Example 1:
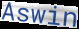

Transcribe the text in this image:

Aswin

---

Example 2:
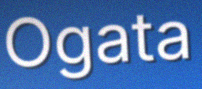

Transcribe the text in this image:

Ogata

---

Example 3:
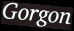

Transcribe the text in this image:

Gorgon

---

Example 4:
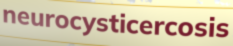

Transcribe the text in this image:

neurocysticercosis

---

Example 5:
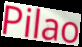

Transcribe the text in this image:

Pilao